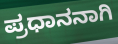
ಪ್ರಧಾನನಾಗಿ